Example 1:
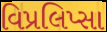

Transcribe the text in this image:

વિપ્રલિપ્સા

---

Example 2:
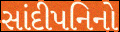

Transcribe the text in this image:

સાંદીપનિનો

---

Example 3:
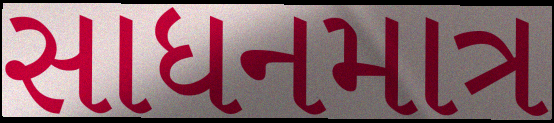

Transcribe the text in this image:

સાધનમાત્ર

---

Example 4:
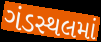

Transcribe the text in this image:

ગંડસ્થલમાં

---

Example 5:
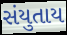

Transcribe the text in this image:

સંયુતાય